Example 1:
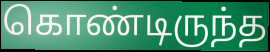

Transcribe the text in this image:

கொண்டிருந்த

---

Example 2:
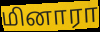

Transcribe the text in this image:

மினாரா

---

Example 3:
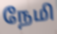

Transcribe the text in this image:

நேமி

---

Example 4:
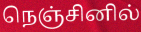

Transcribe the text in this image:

நெஞ்சினில்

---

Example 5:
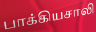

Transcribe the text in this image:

பாக்கியசாலி